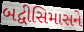
બદ્વીસિમાસને